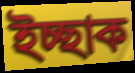
ইচ্ছাক